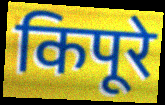
किपूरे